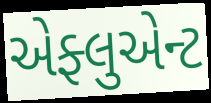
એફ્લુએન્ટ